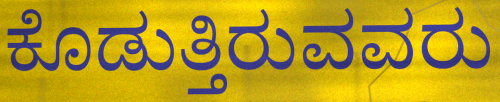
ಕೊಡುತ್ತಿರುವವರು